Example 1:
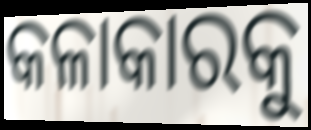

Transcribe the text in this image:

କଳାକାରକୁ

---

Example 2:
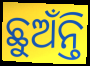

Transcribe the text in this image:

ଛୁଅଁନ୍ତି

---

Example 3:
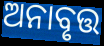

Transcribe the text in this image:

ଅନାବୃତ୍ତ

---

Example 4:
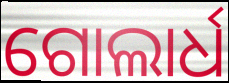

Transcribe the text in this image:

ଗୋଲାର୍ଧ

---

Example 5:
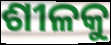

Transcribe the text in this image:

ଶୀଳକୁ